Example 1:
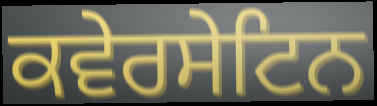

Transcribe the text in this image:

ਕਵੇਰਸੇਟਿਨ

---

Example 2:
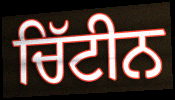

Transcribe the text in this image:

ਚਿੱਟੀਨ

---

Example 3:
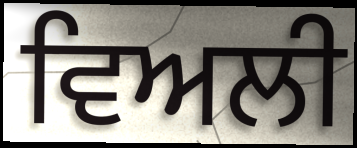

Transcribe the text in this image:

ਵਿਅਲੀ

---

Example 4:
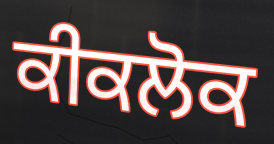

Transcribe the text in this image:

ਕੀਕਲੋਕ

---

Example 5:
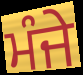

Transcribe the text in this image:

ਮੰਜੇ